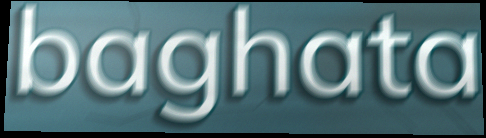
baghata